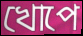
খোপে